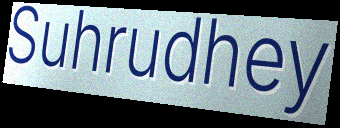
Suhrudhey